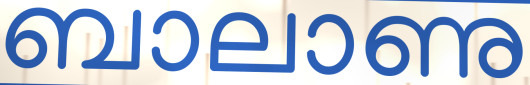
ബാലാണു